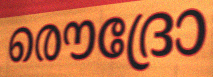
രൌദ്രോ